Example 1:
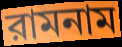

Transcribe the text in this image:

রামনাম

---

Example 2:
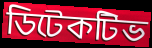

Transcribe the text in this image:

ডিটেকটিভ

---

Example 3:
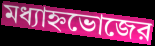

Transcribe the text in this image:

মধ্যাহ্নভোজের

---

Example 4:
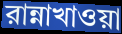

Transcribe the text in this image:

রান্নাখাওয়া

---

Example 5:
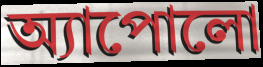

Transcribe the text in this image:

অ্যাপোলো